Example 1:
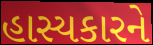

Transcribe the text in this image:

હાસ્યકારને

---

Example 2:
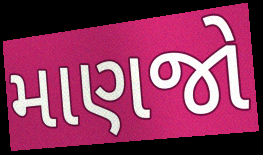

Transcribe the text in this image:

માણજો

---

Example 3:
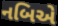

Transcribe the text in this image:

નબિએ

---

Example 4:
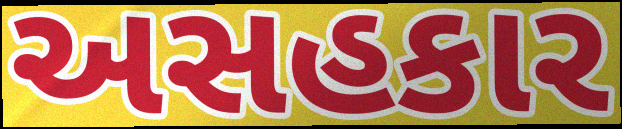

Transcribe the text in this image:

અસહકાર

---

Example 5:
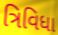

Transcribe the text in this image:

ત્રિવિધા